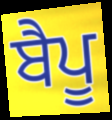
ਬੈਪੂ